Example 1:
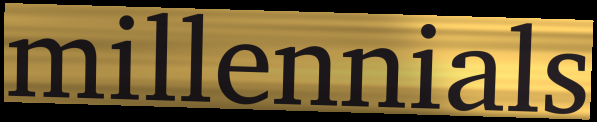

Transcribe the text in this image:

millennials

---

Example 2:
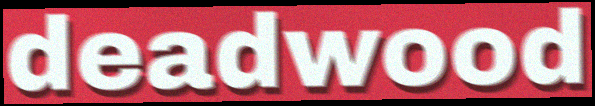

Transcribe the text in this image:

deadwood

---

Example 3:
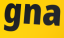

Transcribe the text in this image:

gna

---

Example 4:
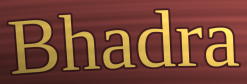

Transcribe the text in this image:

Bhadra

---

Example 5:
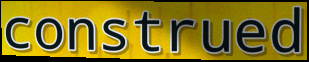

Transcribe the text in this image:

construed